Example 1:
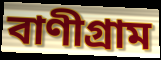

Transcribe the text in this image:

বাণীগ্রাম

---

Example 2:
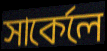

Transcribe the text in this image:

সার্কেলে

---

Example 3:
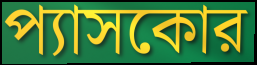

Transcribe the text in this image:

প্যাসকোর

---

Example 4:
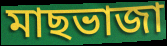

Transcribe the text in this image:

মাছভাজা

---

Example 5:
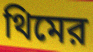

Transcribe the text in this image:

থিমের